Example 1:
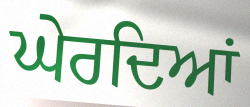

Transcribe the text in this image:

ਘੇਰਦਿਆਂ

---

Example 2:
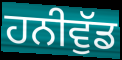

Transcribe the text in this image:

ਹਨੀਵੁੱਡ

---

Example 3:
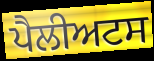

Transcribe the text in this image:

ਪੈਲੀਅਟਸ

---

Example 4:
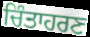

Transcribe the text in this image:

ਚਿੰਤਾਹਰਣ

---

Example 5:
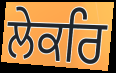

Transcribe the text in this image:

ਲੇਕਰਿ